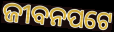
ଜୀବନପଟେ